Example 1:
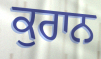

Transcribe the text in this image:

ਕੁਰਾਨ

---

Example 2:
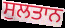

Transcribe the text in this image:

ਸੁਲਤਾਨ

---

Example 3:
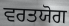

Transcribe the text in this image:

ਵਰਤਯੋਗ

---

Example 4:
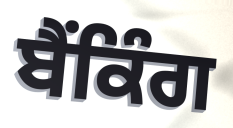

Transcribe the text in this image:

ਬੈਂਕਿੰਗ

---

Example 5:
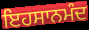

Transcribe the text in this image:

ਇਹਸਾਨਮੰਦ